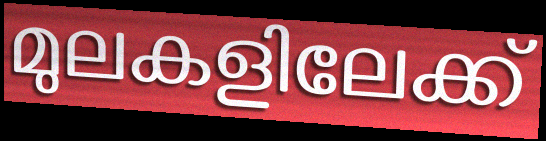
മുലകളിലേക്ക്